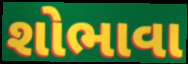
શોભાવા